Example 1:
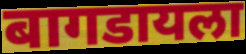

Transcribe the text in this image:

बागडायला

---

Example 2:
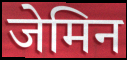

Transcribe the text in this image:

जेमिन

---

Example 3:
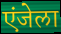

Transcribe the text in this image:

एंजेला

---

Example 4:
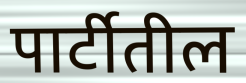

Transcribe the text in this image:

पार्टीतील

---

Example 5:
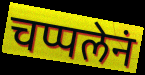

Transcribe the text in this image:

चप्पलेनं